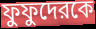
ফুফুদেরকে